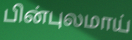
பின்புலமாய்